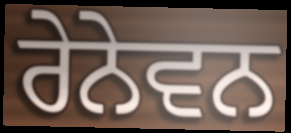
ਰੇਨੇਵਨ